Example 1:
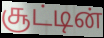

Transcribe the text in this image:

சூட்டின்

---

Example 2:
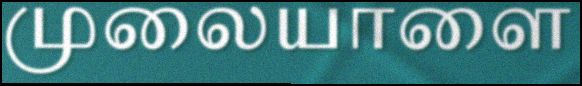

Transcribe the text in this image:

முலையாளை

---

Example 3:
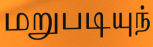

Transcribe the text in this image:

மறுபடியுந்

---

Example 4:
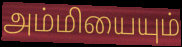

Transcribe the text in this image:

அம்மியையும்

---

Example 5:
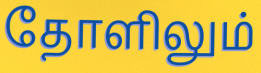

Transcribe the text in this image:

தோளிலும்